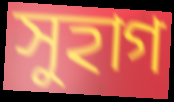
সুহাগ